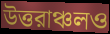
উত্তরাঞ্চলও